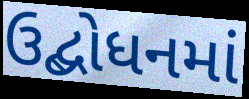
ઉદ્બોધનમાં